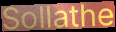
Sollathe